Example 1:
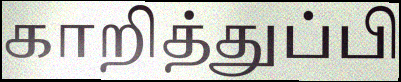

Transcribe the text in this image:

காறித்துப்பி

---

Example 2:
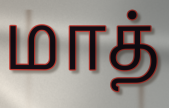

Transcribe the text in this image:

மாத்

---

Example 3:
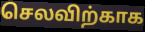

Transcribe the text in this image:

செலவிற்காக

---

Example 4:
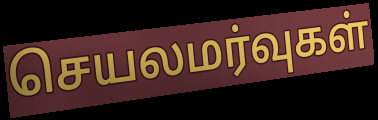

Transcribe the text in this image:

செயலமர்வுகள்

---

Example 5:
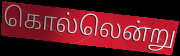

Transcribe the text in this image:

கொல்லென்று